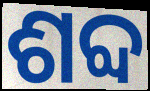
ଶବ୍ଦ